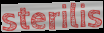
sterilis